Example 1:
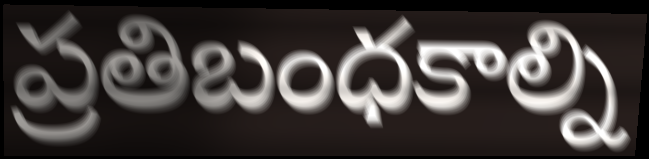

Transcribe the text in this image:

ప్రతిబంధకాల్ని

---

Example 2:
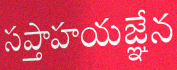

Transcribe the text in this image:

సప్తాహయజ్ఞేన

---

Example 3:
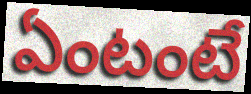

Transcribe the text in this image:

ఏంటంటే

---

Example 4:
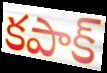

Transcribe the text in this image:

కపాక్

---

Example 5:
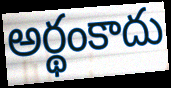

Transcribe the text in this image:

అర్థంకాదు